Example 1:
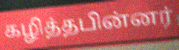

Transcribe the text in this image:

கழித்தபின்னர்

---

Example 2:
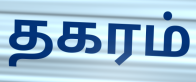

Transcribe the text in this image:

தகரம்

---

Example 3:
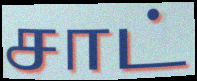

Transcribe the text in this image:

சாட்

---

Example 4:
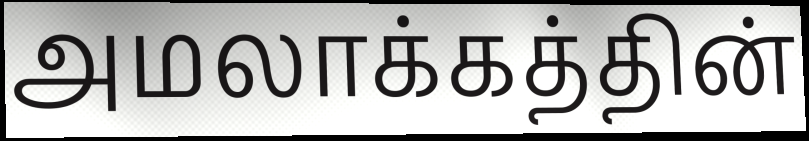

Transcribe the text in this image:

அமலாக்கத்தின்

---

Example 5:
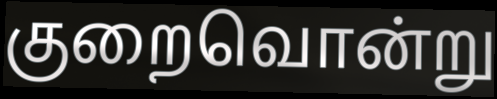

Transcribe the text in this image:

குறைவொன்று